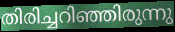
തിരിച്ചറിഞ്ഞിരുന്നു